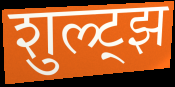
शुल्ट्झ